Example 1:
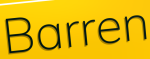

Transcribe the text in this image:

Barren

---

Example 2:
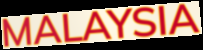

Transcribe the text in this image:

MALAYSIA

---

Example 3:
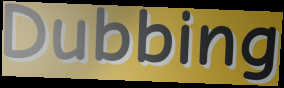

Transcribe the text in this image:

Dubbing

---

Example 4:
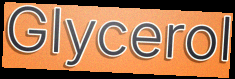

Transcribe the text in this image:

Glycerol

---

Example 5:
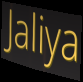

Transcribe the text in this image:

Jaliya